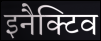
इनैक्टिव